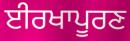
ਈਰਖਾਪੂਰਣ